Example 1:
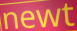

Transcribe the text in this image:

newt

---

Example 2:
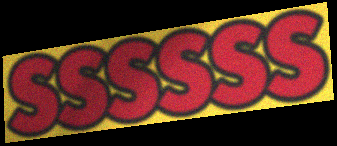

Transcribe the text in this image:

ssssss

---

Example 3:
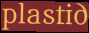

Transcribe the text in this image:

plastid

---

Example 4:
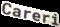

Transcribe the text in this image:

Careri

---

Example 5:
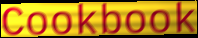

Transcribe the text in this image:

Cookbook